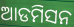
ଆଡମିସନ